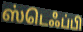
ஸ்டெஃப்பி